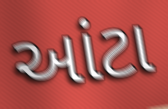
આંટા